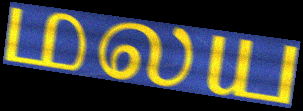
மலய